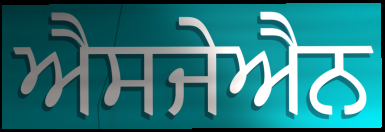
ਐਸਜੇਐਨ